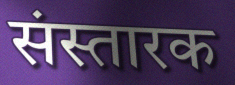
संस्तारक